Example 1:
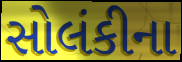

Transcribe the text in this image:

સોલંકીના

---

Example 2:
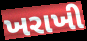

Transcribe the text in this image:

ખરાખી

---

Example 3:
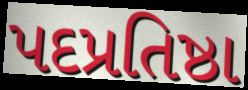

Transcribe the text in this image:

પદપ્રતિષ્ઠા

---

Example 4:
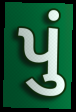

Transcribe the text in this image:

પું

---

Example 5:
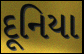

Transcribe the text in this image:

દૂનિયા